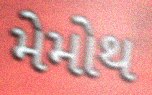
મેમોથ